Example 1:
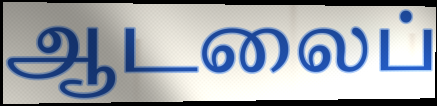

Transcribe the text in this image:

ஆடலைப்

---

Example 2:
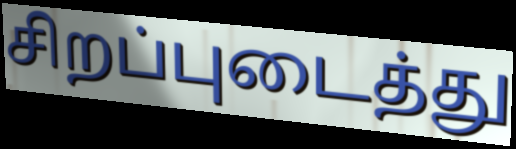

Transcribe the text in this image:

சிறப்புடைத்து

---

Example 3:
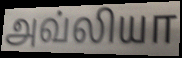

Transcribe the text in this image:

அவ்லியா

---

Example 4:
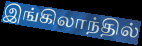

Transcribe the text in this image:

இங்கிலாந்தில்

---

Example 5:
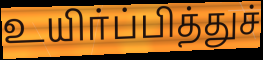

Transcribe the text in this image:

உயிர்ப்பித்துச்